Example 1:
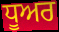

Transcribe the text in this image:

ਧੂਅਰ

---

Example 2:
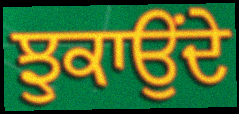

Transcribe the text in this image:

ਝੁਕਾਉਂਦੇ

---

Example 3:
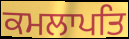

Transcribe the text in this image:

ਕਮਲਾਪਤਿ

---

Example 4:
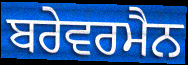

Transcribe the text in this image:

ਬਰੇਵਰਮੈਨ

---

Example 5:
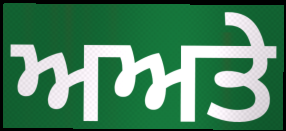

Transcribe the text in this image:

ਅਅਤੇ